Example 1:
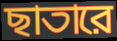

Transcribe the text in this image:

ছাতারে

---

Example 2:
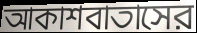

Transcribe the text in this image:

আকাশবাতাসের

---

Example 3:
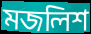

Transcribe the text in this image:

মজলিশ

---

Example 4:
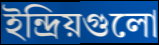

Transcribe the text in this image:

ইন্দ্রিয়গুলো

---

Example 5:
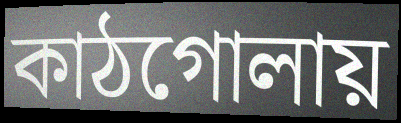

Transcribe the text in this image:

কাঠগোলায়